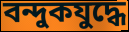
বন্দুকযুদ্ধে